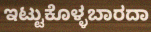
ಇಟ್ಟುಕೊಳ್ಳಬಾರದಾ